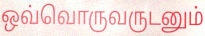
ஒவ்வொருவருடனும்